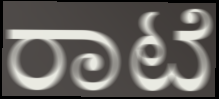
ರಾಟೆ